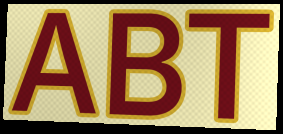
ABT